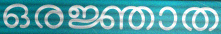
ഒരജ്ഞാത